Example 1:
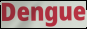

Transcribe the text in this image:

Dengue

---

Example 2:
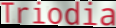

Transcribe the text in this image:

Triodia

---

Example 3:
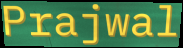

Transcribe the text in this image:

Prajwal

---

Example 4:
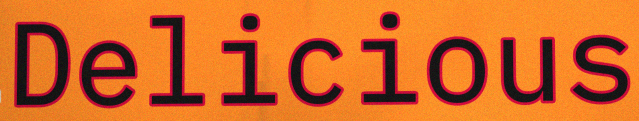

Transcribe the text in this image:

Delicious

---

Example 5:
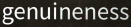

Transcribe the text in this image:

genuineness